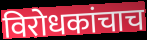
विरोधकांचाच